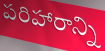
పరిహారాన్ని